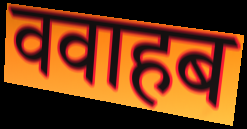
ववाहब